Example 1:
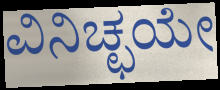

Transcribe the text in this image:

ವಿನಿಚ್ಛಯೇ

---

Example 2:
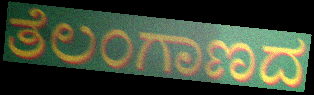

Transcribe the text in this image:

ತೆಲಂಗಾಣದ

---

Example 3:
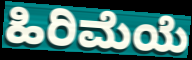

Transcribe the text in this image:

ಹಿರಿಮೆಯೆ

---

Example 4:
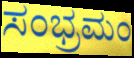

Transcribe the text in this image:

ಸಂಭ್ರಮಂ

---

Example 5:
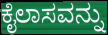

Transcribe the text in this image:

ಕೈಲಾಸವನ್ನು